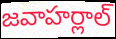
జవాహర్లాల్